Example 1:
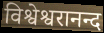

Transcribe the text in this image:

विश्वेश्वरानन्द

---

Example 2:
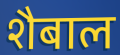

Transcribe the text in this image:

शैबाल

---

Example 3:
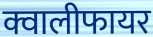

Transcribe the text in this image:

क्‍वालीफायर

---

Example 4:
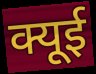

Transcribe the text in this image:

क्यूई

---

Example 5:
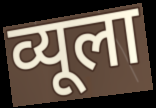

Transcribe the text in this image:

व्यूला